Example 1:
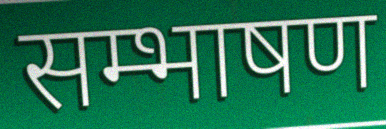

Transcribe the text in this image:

सम्भाषण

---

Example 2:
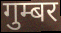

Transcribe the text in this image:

गुम्बर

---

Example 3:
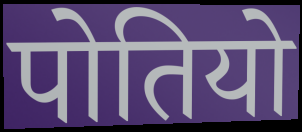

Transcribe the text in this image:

पोतियो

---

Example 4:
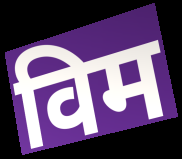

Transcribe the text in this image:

विम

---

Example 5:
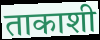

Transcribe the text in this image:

ताकाशी